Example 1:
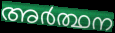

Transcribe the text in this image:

അർത്ഥന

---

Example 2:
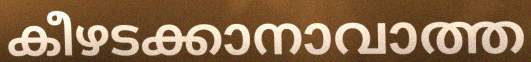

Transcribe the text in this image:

കീഴടക്കാനാവാത്ത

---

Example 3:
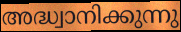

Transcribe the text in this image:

അദ്ധ്വാനിക്കുന്നു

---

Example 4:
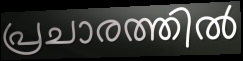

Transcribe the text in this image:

പ്രചാരത്തിൽ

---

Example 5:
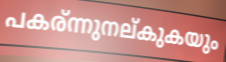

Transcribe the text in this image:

പകര്ന്നുനല്കുകയും